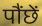
पौंछें